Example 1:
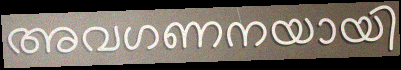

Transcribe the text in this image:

അവഗണനയായി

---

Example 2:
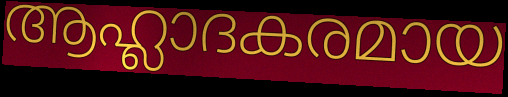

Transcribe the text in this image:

ആഹ്ലാദകരമായ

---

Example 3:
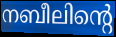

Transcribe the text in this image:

നബീലിന്റെ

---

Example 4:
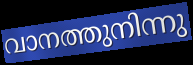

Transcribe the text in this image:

വാനത്തുനിന്നു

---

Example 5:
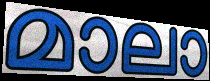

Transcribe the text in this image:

മാലാ